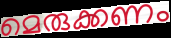
മെരുക്കണം